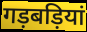
गड़बड़ियां